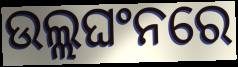
ଉଲ୍ଲଘଂନରେ